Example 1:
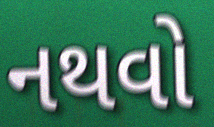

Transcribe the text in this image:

નથવો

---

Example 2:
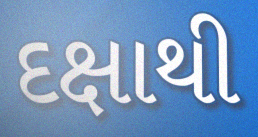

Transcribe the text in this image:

દક્ષાથી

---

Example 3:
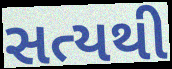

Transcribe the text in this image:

સત્યથી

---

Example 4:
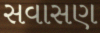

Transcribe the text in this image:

સવાસણ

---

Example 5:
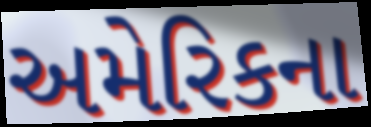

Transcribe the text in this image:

અમેરિકના